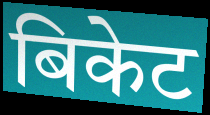
बिकेट